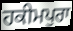
ਹਕੀਮਪੁਰਾ